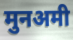
मुनअमी